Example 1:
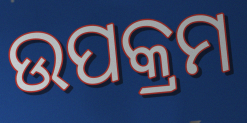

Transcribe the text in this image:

ଉପକ୍ରମ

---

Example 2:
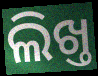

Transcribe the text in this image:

ଲିଖ୍ତ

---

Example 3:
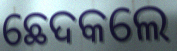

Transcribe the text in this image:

ଛେଦକଲେ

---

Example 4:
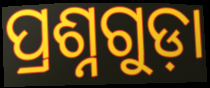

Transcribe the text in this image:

ପ୍ରଶ୍ନଗୁଡ଼ା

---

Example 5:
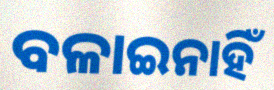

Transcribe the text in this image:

ବଳାଇନାହିଁ